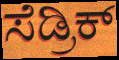
ಸೆಡ್ರಿಕ್